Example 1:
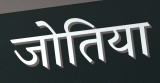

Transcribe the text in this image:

जोतिया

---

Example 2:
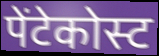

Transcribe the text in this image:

पेंटेकोस्ट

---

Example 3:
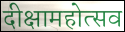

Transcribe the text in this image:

दीक्षामहोत्सव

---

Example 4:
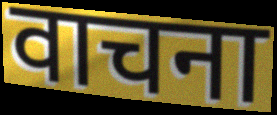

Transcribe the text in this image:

वाचना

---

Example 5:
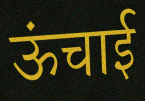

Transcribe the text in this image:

ऊंचाई